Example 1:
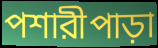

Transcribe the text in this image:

পশারীপাড়া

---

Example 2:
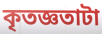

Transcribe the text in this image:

কৃতজ্ঞতাটা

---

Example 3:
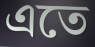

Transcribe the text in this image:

এতে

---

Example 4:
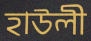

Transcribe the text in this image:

হাউলী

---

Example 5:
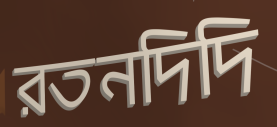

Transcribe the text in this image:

রতনদিদি